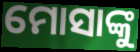
ମୋସାଙ୍କୁ